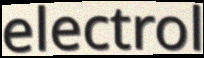
electrol